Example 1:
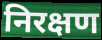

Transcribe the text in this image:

निरक्षण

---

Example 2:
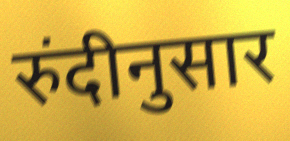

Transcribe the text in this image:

रुंदीनुसार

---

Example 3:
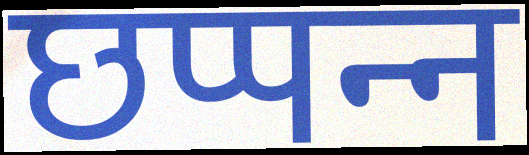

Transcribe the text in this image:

छप्पन्न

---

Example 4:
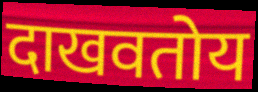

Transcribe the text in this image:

दाखवतोय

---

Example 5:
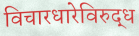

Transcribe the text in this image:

विचारधारेविरुद्ध